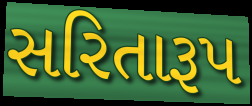
સરિતારૂપ